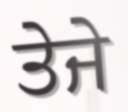
ਤੇਜੇ